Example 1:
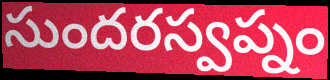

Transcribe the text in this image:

సుందరస్వప్నం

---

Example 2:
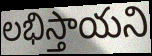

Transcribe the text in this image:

లభిస్తాయని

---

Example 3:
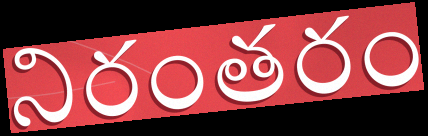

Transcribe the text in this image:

నిరంతరం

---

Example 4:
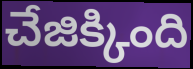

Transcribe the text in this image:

చేజిక్కింది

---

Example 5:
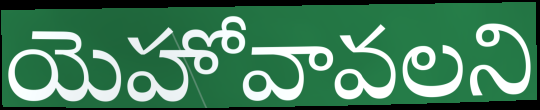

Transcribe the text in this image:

యెహోవావలని